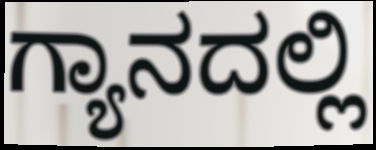
ಗ್ಯಾನದಲ್ಲಿ